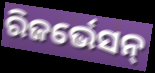
ରିଜର୍ଭେସନ୍